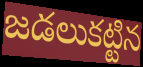
జడలుకట్టిన